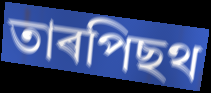
তাৰপিছথ